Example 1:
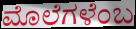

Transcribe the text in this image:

ಮೊಲೆಗಳೆಂಬ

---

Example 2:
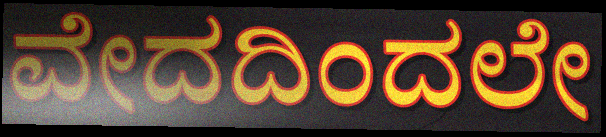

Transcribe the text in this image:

ವೇದದಿಂದಲೇ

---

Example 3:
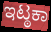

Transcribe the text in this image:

ಇಟ್ಠಕಾ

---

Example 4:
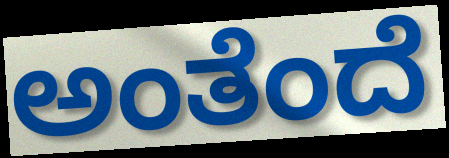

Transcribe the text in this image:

ಅಂತೆಂದೆ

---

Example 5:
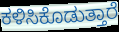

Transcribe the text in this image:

ಕಳಿಸಿಕೊಡುತ್ತಾರೆ